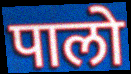
पालो